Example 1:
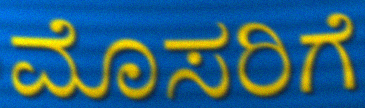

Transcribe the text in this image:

ಮೊಸರಿಗೆ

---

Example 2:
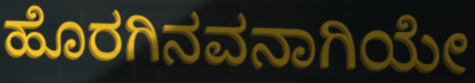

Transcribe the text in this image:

ಹೊರಗಿನವನಾಗಿಯೇ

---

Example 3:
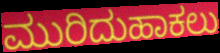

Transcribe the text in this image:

ಮುರಿದುಹಾಕಲು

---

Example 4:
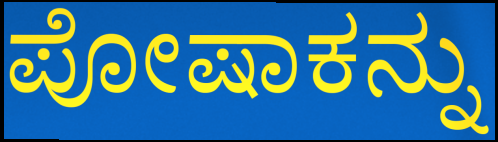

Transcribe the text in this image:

ಪೋಷಾಕನ್ನು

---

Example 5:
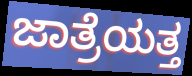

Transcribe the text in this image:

ಜಾತ್ರೆಯತ್ತ